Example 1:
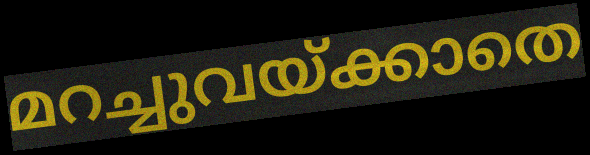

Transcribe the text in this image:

മറച്ചുവയ്ക്കാതെ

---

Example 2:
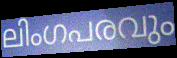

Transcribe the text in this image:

ലിംഗപരവും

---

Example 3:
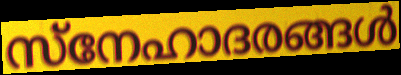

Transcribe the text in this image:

സ്നേഹാദരങ്ങൾ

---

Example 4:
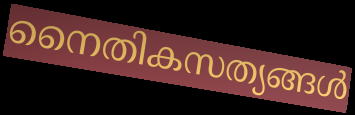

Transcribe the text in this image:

നൈതികസത്യങ്ങൾ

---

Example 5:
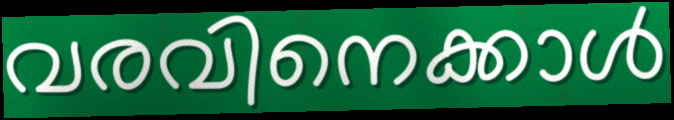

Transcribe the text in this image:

വരവിനെക്കാൾ